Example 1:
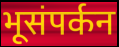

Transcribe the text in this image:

भूसंपर्कन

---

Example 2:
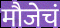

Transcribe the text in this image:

मौजेचं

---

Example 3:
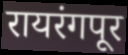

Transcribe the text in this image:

रायरंगपूर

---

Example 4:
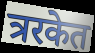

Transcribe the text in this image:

त्ररकेत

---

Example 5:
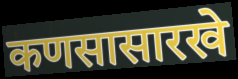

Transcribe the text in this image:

कणसासारखे